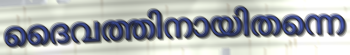
ദൈവത്തിനായിതന്നെ